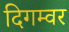
दिगम्वर